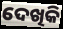
ଦେଖିକି